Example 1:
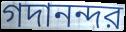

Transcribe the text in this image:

গদানন্দর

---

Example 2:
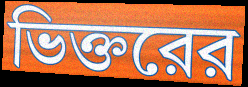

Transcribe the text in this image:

ভিক্তরের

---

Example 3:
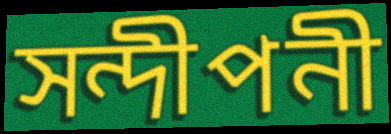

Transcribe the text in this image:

সন্দীপনী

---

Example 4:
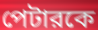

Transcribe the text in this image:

পেটারকে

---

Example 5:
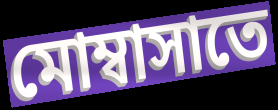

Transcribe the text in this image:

মোম্বাসাতে